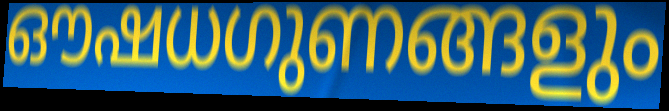
ഔഷധഗുണങ്ങളും